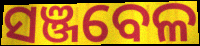
ସଞ୍ଜବେଳ